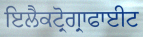
ਇਲੈਕਟ੍ਰੋਗ੍ਰਾਫਾਈਟ